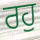
ਰਹੁ